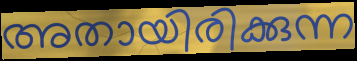
അതായിരിക്കുന്ന